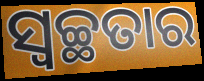
ସ୍ଵଚ୍ଛତାର